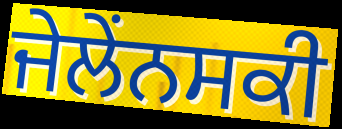
ਜੇਲੇਂਨਸਕੀ